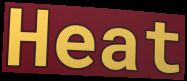
Heat